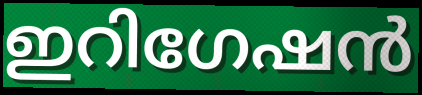
ഇറിഗേഷൻ